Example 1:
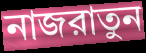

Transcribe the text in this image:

নাজরাতুন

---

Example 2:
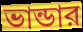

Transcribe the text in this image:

ভান্ডার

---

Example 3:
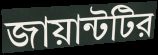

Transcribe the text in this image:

জায়ান্টটির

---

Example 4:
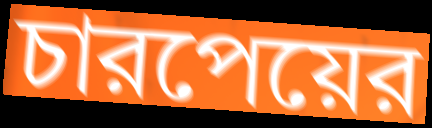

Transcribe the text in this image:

চারপেয়ের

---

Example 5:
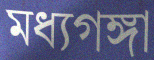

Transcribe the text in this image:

মধ্যগঙ্গা